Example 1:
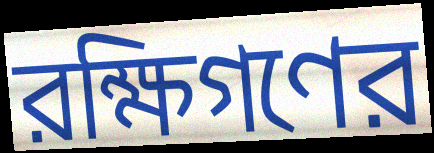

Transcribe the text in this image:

রক্ষিগণের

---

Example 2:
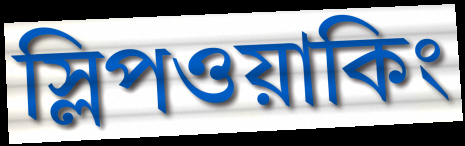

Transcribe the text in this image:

স্লিপওয়াকিং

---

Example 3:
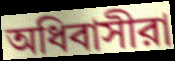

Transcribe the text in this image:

অধিবাসীরা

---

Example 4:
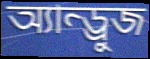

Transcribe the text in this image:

অ্যান্ড্রুজ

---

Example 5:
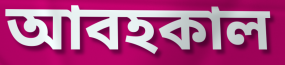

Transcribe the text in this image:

আবহকাল